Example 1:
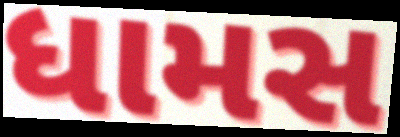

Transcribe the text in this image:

ધામસ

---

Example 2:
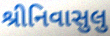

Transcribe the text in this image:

શ્રીનિવાસુલુ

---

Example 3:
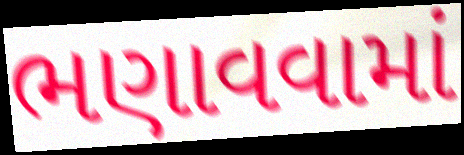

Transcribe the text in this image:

ભણાવવામાં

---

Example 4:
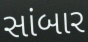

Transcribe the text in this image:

સાંબાર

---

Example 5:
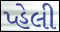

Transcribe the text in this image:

પ્હેલી